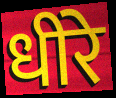
धीरे